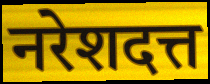
नरेशदत्त